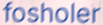
fosholer